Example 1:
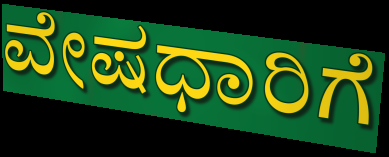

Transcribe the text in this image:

ವೇಷಧಾರಿಗೆ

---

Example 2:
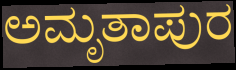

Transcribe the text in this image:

ಅಮೃತಾಪುರ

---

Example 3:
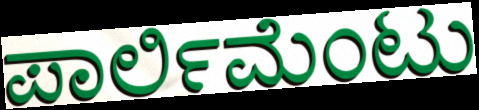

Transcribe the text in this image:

ಪಾರ್ಲಿಮೆಂಟು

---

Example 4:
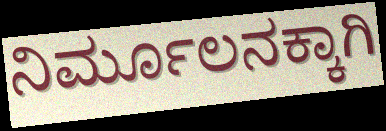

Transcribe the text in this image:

ನಿರ್ಮೂಲನಕ್ಕಾಗಿ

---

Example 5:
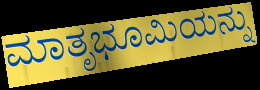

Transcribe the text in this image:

ಮಾತೃಭೂಮಿಯನ್ನು